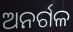
ଅନର୍ଗଳ